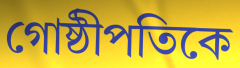
গোষ্ঠীপতিকে